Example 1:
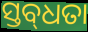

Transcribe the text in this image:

ସ୍ତବ୍‍ଧତା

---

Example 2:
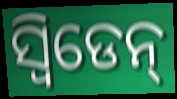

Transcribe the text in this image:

ସ୍ଵିଡେନ୍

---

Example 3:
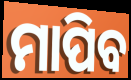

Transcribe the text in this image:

ମାପିବ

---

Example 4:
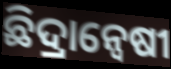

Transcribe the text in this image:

ଛିଦ୍ରାନ୍ୱେଷୀ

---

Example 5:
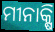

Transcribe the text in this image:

ମୀନାକ୍ଷି